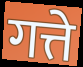
गत्ते